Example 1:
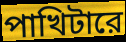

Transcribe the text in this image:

পাখিটারে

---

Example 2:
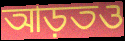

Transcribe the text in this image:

আড়তও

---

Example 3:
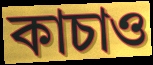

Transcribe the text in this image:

কাচাও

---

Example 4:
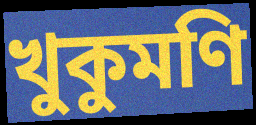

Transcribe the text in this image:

খুকুমণি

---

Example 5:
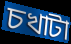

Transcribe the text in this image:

চখাটা